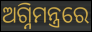
ଅଗ୍ନିମନ୍ତ୍ରରେ